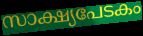
സാക്ഷ്യപേടകം